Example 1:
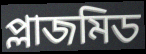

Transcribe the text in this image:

প্লাজমিড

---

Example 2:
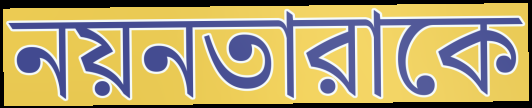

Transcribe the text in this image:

নয়নতারাকে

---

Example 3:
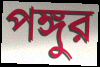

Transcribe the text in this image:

পঙ্গুর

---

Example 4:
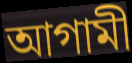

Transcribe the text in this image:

আগামী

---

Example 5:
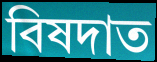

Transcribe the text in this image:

বিষদাত